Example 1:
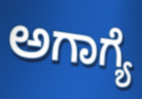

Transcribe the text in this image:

ಅಗಾಗ್ಯೆ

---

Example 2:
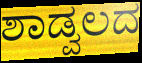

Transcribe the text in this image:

ಶಾಡ್ವಲದ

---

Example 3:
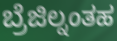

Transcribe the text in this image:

ಬ್ರೆಜಿಲ್ನಂತಹ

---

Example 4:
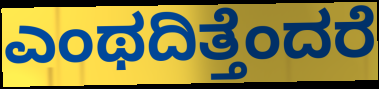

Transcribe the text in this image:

ಎಂಥದಿತ್ತೆಂದರೆ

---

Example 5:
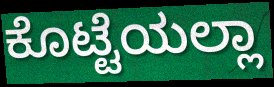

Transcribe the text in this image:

ಕೊಟ್ಟೆಯಲ್ಲಾ